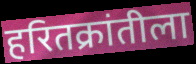
हरितक्रांतीला